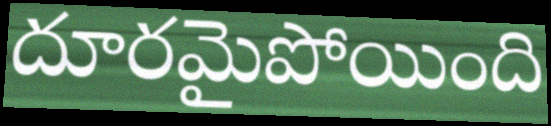
దూరమైపోయింది